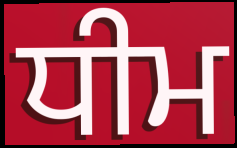
ਧੀਮ